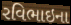
રવિભાઇના